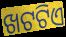
ଖଟଟିଏ